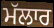
ਮੱਲਾਰ